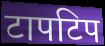
टापटिप